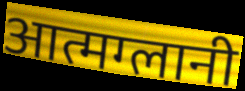
आत्मग्लानी